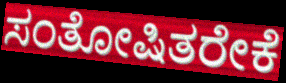
ಸಂತೋಷಿತರೇಕೆ